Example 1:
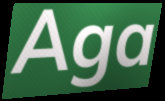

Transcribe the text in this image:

Aga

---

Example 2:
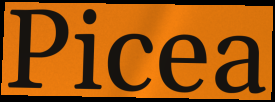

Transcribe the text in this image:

Picea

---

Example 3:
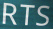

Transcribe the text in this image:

RTS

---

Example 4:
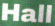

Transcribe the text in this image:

Hall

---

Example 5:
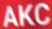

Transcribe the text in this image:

AKC